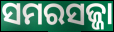
ସମରସଜ୍ଜା